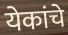
येकांचे